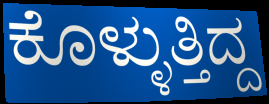
ಕೊಳ್ಳುತ್ತಿದ್ದ